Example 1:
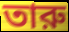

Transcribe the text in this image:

তারু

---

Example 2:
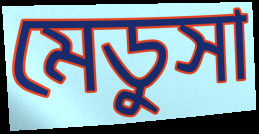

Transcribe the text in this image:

মেডুসা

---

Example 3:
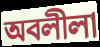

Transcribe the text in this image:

অবলীলা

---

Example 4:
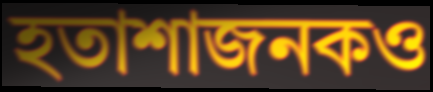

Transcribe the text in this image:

হতাশাজনকও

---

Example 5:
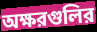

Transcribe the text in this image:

অক্ষরগুলির